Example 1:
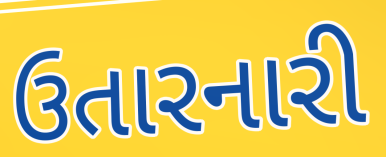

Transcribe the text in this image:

ઉતારનારી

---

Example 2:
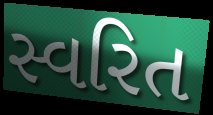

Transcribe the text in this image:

સ્વરિત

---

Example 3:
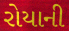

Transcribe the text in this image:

રોયાની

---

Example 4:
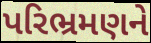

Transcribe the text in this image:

પરિભ્રમણને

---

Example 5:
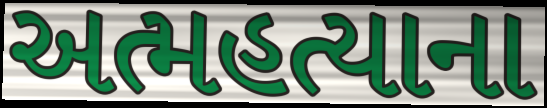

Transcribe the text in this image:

અત્મહત્યાના